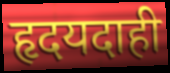
हृदयदाही